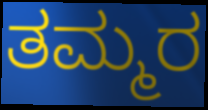
ತಮ್ಮರ